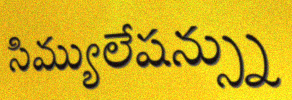
సిమ్యులేషన్స్ను